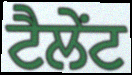
ਟੈਲੇੰਟ